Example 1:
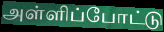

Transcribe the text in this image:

அள்ளிப்போட்டு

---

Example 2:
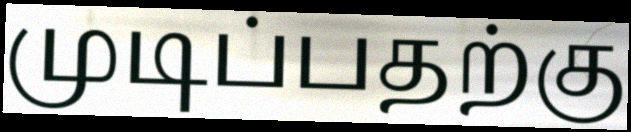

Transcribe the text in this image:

முடிப்பதற்கு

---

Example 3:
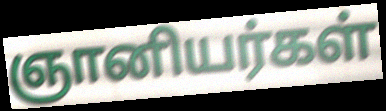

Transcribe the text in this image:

ஞானியர்கள்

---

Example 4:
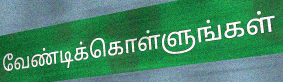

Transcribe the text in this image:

வேண்டிக்கொள்ளுங்கள்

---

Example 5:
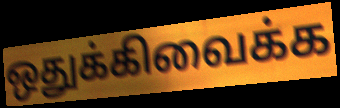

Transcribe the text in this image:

ஒதுக்கிவைக்க